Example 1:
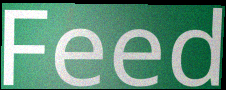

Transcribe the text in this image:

Feed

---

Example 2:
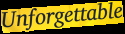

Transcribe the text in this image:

Unforgettable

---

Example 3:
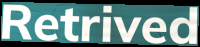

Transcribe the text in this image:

Retrived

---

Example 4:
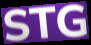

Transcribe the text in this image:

STG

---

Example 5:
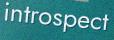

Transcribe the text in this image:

introspect